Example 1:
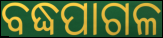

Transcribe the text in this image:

ବଦ୍ଧପାଗଳ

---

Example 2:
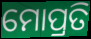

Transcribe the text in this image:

ମୋପ୍ରତି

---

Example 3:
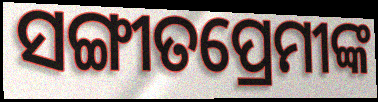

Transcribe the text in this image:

ସଙ୍ଗୀତପ୍ରେମୀଙ୍କ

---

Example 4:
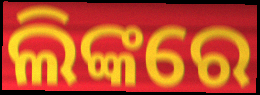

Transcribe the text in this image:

ଲିଙ୍କରେ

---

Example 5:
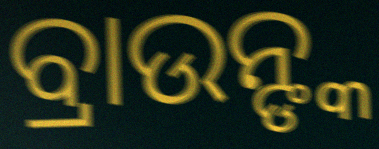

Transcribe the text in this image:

ବ୍ରାଉନ୍ଙ୍କ